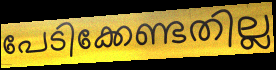
പേടിക്കേണ്ടതില്ല